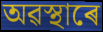
অৱস্থাৰে